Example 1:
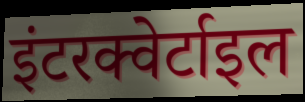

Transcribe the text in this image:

इंटरक्वेर्टाइल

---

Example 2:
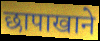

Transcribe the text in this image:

छापाखाने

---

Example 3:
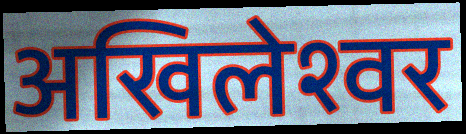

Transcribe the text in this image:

अखिलेश्वर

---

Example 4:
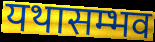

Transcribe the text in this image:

यथासम्भव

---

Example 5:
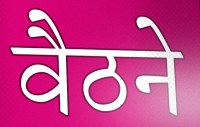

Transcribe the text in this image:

वैठने